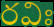
రవిః